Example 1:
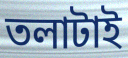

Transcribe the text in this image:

তলাটাই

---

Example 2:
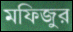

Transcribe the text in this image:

মফিজুর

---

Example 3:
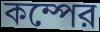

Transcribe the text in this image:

কম্পের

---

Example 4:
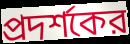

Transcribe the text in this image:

প্রদর্শকের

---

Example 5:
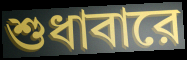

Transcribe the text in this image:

শুধাবারে